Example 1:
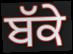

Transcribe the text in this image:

ਬੱਕੇ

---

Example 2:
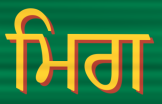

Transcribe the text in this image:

ਮਿਗ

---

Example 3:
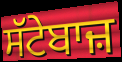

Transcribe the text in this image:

ਸੱਟੇਬਾਜ਼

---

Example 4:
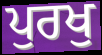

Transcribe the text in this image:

ਪੁਰਖੁ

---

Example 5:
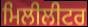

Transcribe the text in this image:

ਮਿਲੀਲੀਟਰ